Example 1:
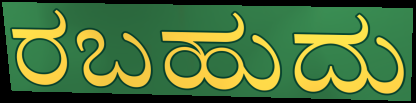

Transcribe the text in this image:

ರಬಹುದು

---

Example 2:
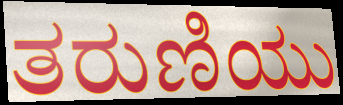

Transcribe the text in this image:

ತರುಣಿಯು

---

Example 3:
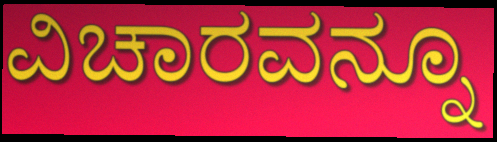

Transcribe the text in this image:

ವಿಚಾರವನ್ನೂ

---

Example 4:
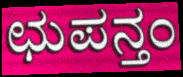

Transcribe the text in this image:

ಛುಪನ್ತಂ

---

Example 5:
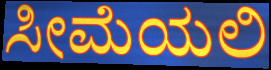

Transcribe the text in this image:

ಸೀಮೆಯಲಿ